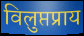
विलुप्तप्राय